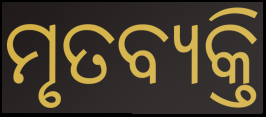
ମୃତବ୍ୟକ୍ତି